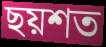
ছয়শত